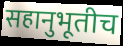
सहानुभूतीच